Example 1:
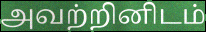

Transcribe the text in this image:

அவற்றினிடம்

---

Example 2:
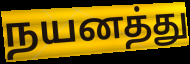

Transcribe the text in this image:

நயனத்து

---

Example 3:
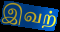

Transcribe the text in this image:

இவற்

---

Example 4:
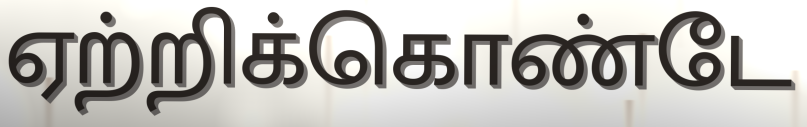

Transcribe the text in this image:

ஏற்றிக்கொண்டே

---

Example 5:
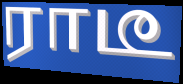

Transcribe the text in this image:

ராடீ